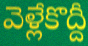
వెళ్లేకొద్దీ